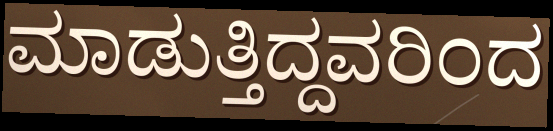
ಮಾಡುತ್ತಿದ್ದವರಿಂದ